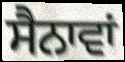
ਸੈਨਾਵਾਂ